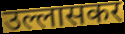
उल्लासकर